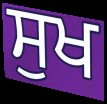
ਸੁਖ